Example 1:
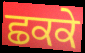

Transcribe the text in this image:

ਛਕਕੇ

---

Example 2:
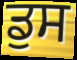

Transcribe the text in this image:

ਡੁਸ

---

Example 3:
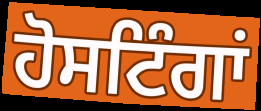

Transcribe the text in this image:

ਹੋਸਟਿੰਗਾਂ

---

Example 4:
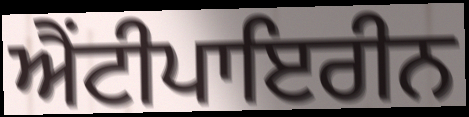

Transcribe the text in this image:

ਐਂਟੀਪਾਇਰੀਨ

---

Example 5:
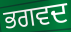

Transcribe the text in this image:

ਭਗਵਦ